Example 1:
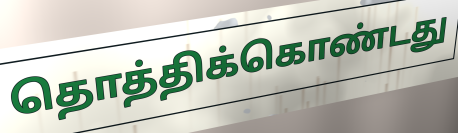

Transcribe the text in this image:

தொத்திக்கொண்டது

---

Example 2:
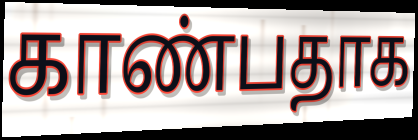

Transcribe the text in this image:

காண்பதாக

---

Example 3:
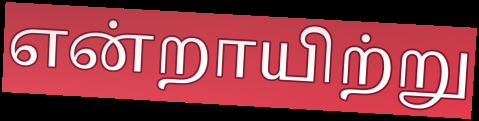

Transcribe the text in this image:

என்றாயிற்று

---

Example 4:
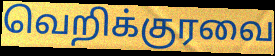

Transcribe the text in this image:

வெறிக்குரவை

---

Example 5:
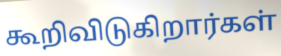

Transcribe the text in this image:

கூறிவிடுகிறார்கள்